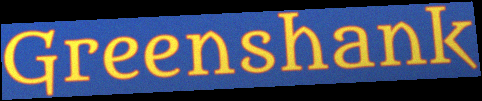
Greenshank